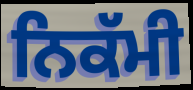
ਨਿਕੱਮੀ